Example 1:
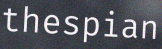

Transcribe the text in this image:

thespian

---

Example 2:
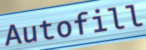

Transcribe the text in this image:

Autofill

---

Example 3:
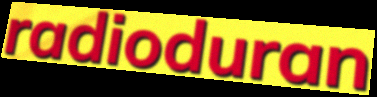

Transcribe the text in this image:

radioduran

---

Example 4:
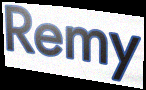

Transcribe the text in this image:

Remy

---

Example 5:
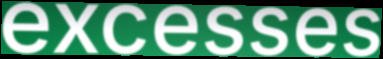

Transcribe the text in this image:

excesses